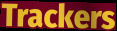
Trackers